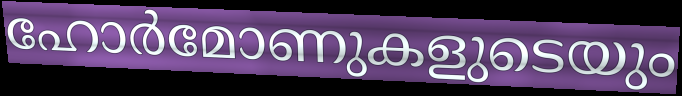
ഹോർമോണുകളുടെയും